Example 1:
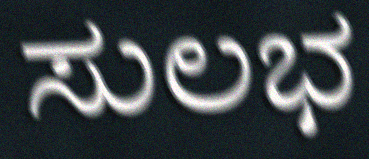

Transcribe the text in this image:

ಸುಲಭ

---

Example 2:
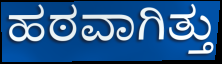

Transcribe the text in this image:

ಹಠವಾಗಿತ್ತು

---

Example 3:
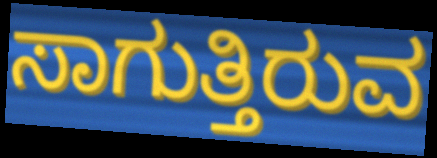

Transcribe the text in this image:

ಸಾಗುತ್ತಿರುವ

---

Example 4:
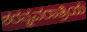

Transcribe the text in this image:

ಶರನ್ನವರಾತ್ರಿಯ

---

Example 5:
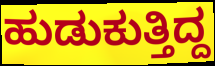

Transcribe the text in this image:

ಹುಡುಕುತ್ತಿದ್ದ